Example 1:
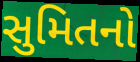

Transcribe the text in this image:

સુમિતનો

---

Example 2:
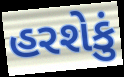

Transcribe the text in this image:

હરશેકું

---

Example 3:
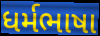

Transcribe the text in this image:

ધર્મભાષા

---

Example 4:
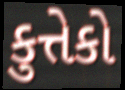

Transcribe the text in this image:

કુત્તેકો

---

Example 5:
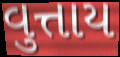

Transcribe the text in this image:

વુત્તાય